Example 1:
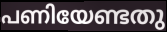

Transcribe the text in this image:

പണിയേണ്ടതു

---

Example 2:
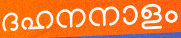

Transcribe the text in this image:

ദഹനനാളം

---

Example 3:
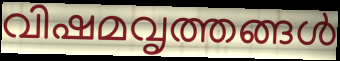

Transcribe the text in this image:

വിഷമവൃത്തങ്ങൾ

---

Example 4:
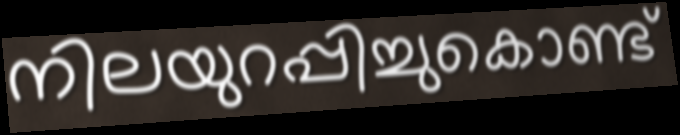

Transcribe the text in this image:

നിലയുറപ്പിച്ചുകൊണ്ട്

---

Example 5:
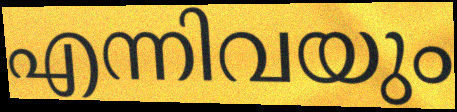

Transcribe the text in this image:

എന്നിവയും